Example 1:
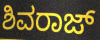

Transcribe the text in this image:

ಶಿವರಾಜ್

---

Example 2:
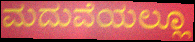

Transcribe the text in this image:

ಮದುವೆಯಲ್ಲೂ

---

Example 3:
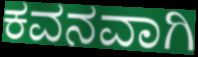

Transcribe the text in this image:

ಕವನವಾಗಿ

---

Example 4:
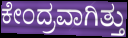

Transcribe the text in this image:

ಕೇಂದ್ರವಾಗಿತ್ತು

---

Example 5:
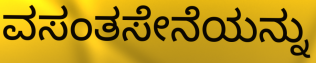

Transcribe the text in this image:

ವಸಂತಸೇನೆಯನ್ನು